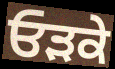
ਓੜਕੇ